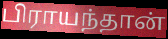
பிராயந்தான்